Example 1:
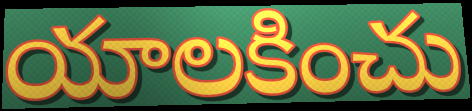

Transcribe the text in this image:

యాలకించు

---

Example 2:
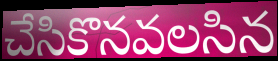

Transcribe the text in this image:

చేసికొనవలసిన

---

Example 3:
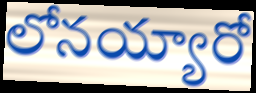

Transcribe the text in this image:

లోనయ్యారో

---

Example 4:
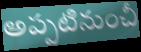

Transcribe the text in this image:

అప్పటినుంచీ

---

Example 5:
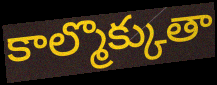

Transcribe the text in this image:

కాల్మొక్కుతా